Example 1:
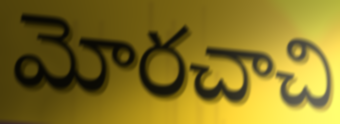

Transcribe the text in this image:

మోరచాచి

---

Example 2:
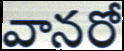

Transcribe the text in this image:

వానరో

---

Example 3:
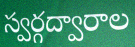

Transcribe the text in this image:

స్వర్గద్వారాల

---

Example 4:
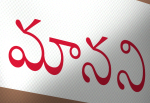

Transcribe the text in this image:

మానని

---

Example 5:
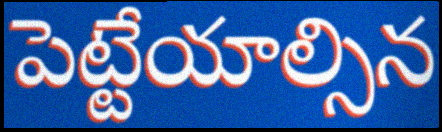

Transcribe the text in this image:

పెట్టేయాల్సిన